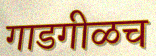
गाडगीळच